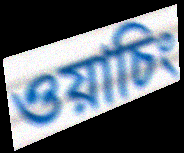
ওয়াচিং